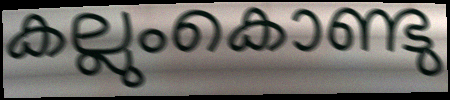
കല്ലുംകൊണ്ടു